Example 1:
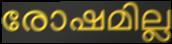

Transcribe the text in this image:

രോഷമില്ല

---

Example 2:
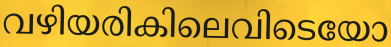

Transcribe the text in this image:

വഴിയരികിലെവിടെയോ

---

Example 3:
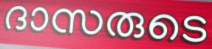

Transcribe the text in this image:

ദാസരുടെ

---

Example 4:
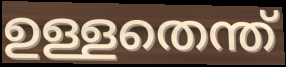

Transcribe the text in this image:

ഉള്ളതെന്ത്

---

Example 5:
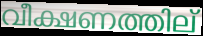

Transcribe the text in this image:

വീക്ഷണത്തില്